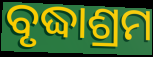
ବୃଦ୍ଧାଶ୍ରମ